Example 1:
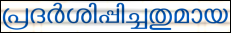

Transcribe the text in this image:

പ്രദർശിപ്പിച്ചതുമായ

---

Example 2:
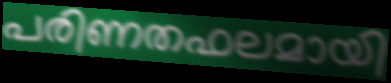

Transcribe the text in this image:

പരിണതഫലമായി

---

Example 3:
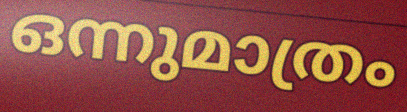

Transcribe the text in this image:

ഒന്നുമാത്രം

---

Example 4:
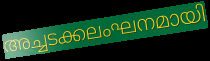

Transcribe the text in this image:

അച്ചടക്കലംഘനമായി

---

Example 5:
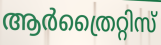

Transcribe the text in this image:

ആർത്രൈറ്റിസ്